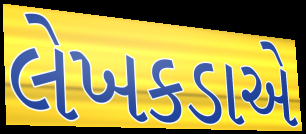
લેખકડાએ